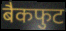
बैकफुट